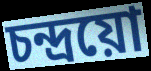
চন্দ্ৰয়ো